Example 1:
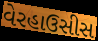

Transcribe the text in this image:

વેરહાઉસીસ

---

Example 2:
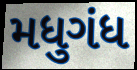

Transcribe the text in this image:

મધુગંધ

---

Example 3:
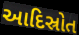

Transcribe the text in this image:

આદિસ્રોત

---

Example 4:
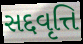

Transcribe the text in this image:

સદ્દવૃત્તિ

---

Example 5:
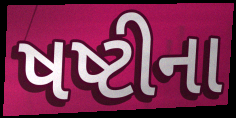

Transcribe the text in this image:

ષષ્ટીના